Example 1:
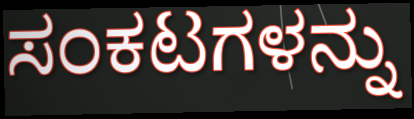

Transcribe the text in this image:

ಸಂಕಟಗಳನ್ನು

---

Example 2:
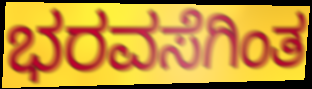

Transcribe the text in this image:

ಭರವಸೆಗಿಂತ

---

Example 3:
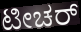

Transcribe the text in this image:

ಟೀಚರ್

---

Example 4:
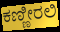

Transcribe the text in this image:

ಕಣ್ಣೀರಲಿ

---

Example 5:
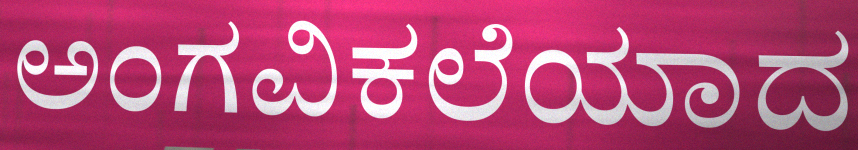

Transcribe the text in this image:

ಅಂಗವಿಕಲೆಯಾದ